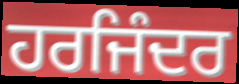
ਹਰਜਿੰਦਰ